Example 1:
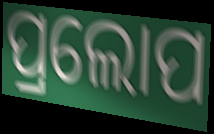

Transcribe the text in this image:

ପ୍ରଲୋପ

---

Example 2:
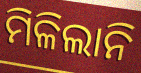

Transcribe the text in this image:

ମିଳିଲାନି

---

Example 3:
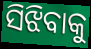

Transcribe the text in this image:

ସିଝିବାକୁ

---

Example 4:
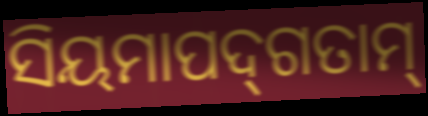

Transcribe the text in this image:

ସିୟମାପଦ୍‌ଗତାମ୍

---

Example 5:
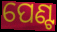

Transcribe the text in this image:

ପେଣ୍ଟ